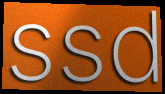
ssd